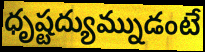
ధృష్టద్యుమ్నుడంటే